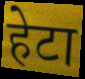
हेटा